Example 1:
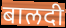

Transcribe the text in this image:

बालदी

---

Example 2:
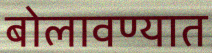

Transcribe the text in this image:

बोलावण्यात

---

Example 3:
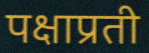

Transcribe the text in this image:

पक्षाप्रती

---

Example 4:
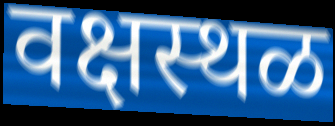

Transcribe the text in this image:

वक्षस्थळ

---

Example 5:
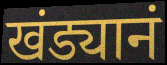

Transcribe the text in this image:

खंड्यानं